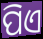
ପିଏ